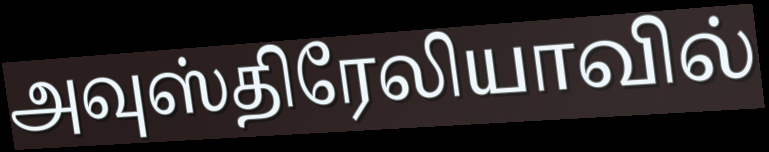
அவுஸ்திரேலியாவில்